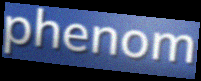
phenom